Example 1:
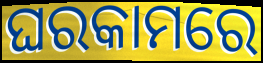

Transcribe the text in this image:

ଘରକାମରେ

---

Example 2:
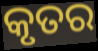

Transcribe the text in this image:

କୃତର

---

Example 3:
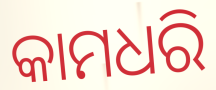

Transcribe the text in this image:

କାମଧରି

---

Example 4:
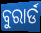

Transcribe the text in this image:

ବୁରାର୍ଡ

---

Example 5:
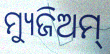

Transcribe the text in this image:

ମ୍ୟୁଜିଅମ୍